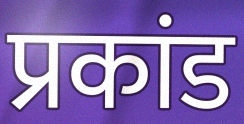
प्रकांड